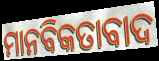
ମାନବିକତାବାଦ